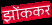
झोंककर